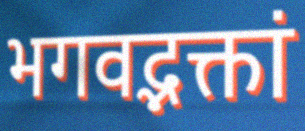
भगवद्भक्तां